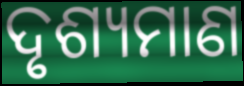
ଦୃଶ୍ୟମାଣ